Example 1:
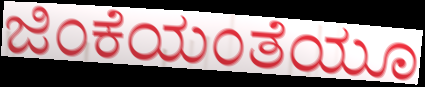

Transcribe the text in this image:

ಜಿಂಕೆಯಂತೆಯೂ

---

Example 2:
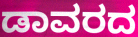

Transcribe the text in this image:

ಡಾವರದ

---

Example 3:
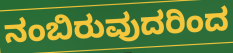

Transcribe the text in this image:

ನಂಬಿರುವುದರಿಂದ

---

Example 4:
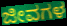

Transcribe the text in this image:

ಜೀವಗಳ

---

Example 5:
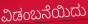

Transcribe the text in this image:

ವಿಡಂಬನೆಯಿದು